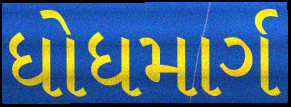
ધોધમાર્ગ